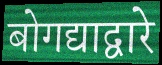
बोगद्याद्वारे